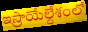
ఇస్రాయేల్దేశంలో